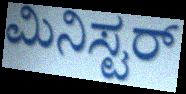
ಮಿನಿಸ್ಟರ್